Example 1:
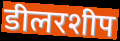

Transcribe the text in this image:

डीलरशीप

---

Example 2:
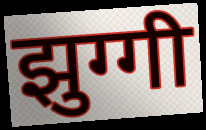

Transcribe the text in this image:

झुग्गी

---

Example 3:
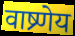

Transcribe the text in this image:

वाष्र्णेय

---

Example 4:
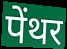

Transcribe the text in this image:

पेंथर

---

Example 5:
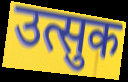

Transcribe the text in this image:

उत्सुक